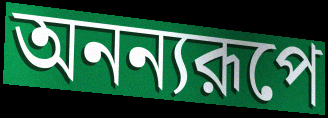
অনন্যরূপে